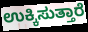
ಉಕ್ಕಿಸುತ್ತಾರೆ